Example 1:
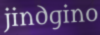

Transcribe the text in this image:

jindgino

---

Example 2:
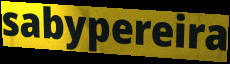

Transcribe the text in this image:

sabypereira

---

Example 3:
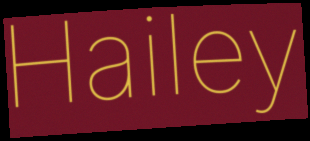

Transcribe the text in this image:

Hailey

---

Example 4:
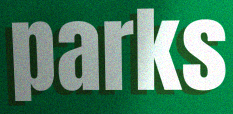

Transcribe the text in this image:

parks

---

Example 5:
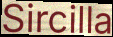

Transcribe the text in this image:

Sircilla